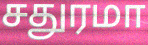
சதுரமா